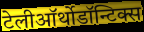
टेलीऑर्थोडॉन्टिक्स